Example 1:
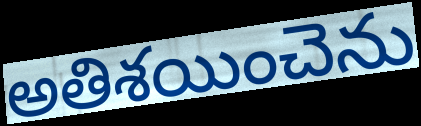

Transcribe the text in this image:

అతిశయించెను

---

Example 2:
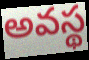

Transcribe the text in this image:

అవస్థ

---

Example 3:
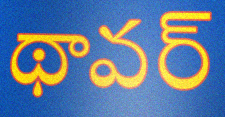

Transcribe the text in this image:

థావర్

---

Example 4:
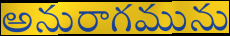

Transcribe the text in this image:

అనురాగమును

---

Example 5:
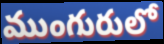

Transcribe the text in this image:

ముంగురులో